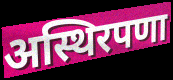
अस्थिरपणा